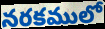
నరకములో